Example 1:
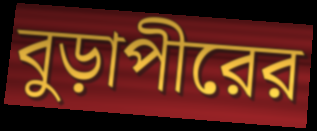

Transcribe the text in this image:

বুড়াপীরের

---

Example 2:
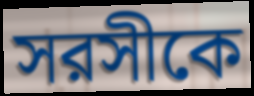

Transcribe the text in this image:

সরসীকে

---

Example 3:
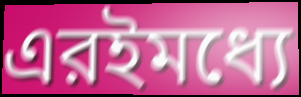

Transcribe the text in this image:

এরইমধ্যে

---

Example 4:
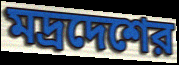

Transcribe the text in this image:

মদ্রদেশের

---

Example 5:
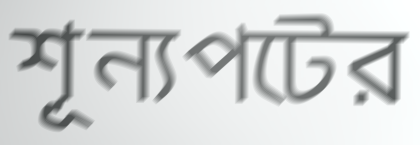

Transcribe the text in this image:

শূন্যপটের